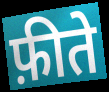
फ़ीते